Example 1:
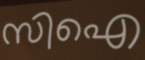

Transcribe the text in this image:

സിഐ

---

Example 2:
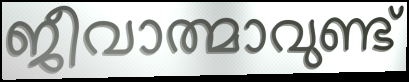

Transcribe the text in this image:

ജീവാത്മാവുണ്ട്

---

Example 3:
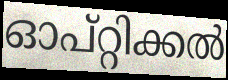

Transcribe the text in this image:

ഓപ്റ്റിക്കൽ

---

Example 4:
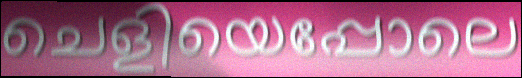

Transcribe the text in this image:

ചെളിയെപ്പോലെ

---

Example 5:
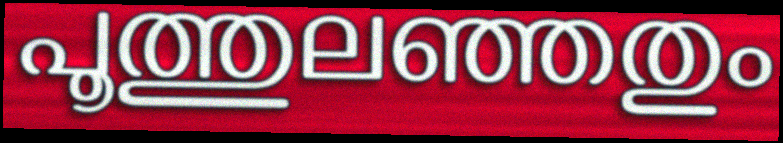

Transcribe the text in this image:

പൂത്തുലഞ്ഞതും